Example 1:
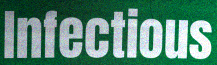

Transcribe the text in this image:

Infectious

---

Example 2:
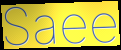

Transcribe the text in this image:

Saee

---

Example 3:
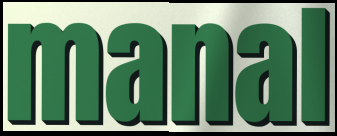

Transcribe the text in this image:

manal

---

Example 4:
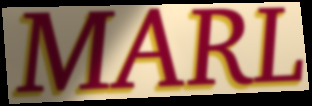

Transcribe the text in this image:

MARL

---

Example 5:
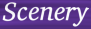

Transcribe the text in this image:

Scenery